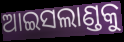
ଆଇସଲାଣ୍ଡକୁ